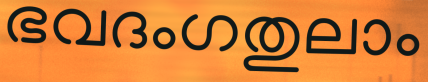
ഭവദംഗതുലാം